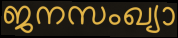
ജനസംഖ്യാ